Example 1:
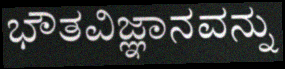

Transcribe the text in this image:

ಭೌತವಿಜ್ಞಾನವನ್ನು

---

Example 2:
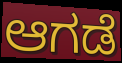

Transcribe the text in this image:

ಆಗಡೆ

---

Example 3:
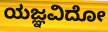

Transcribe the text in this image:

ಯಜ್ಞವಿದೋ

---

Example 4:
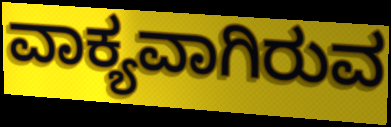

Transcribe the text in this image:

ವಾಕ್ಯವಾಗಿರುವ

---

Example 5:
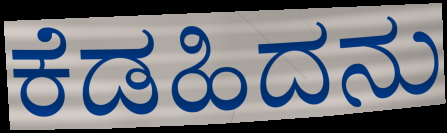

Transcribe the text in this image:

ಕೆಡಹಿದನು